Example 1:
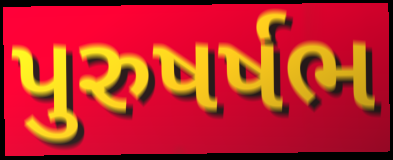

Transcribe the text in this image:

પુરુષર્ષભ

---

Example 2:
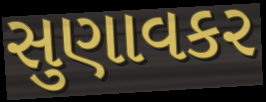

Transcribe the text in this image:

સુણાવકર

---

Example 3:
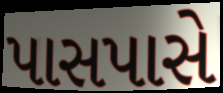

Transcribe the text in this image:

પાસપાસે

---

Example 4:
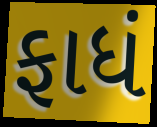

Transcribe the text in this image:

ફાધં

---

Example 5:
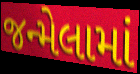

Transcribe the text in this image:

જન્મેલામાં